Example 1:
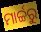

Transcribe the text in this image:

ମାର୍ଚ୍ଚରୁ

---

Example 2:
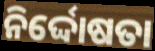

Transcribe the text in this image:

ନିର୍ଦ୍ଦୋଷତା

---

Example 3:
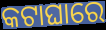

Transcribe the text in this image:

କଟାଘାରେ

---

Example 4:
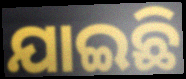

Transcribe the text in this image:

ଯାଇଛି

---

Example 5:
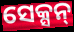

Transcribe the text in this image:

ସେକ୍ସନ୍